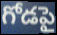
గోడపై